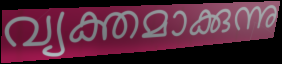
വ്യക്തമാക്കുന്നു